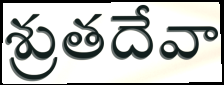
శ్రుతదేవా